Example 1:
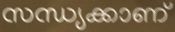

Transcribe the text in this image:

സന്ധ്യക്കാണ്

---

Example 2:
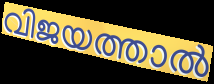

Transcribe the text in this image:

വിജയത്താൽ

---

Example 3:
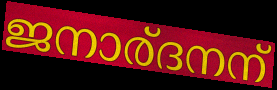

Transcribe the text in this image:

ജനാര്ദനന്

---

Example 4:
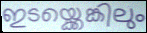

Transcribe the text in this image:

ഇടയ്ക്കെങ്കിലും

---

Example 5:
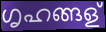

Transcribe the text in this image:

ഗൃഹങ്ങള്